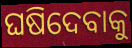
ଘଷିଦେବାକୁ